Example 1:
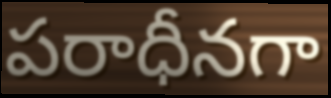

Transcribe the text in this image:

పరాధీనగా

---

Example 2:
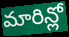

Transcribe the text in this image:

మారిన్లో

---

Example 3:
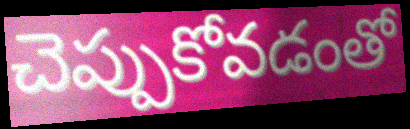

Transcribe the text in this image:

చెప్పుకోవడంతో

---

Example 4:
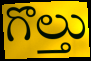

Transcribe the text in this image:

గొల్తు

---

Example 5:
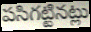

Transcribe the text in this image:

పసిగట్టినట్లు